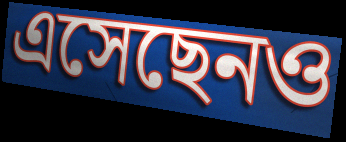
এসেছেনও